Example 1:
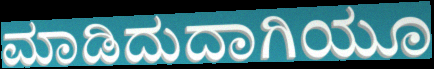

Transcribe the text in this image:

ಮಾಡಿದುದಾಗಿಯೂ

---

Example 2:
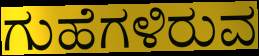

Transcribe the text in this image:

ಗುಹೆಗಳಿರುವ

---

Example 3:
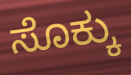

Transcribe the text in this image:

ಸೊಕ್ಕು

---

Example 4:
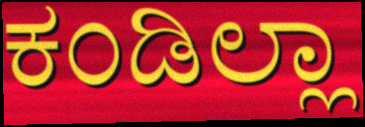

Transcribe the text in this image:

ಕಂಡಿಲ್ಲಾ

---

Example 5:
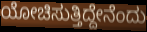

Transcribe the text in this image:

ಯೋಚಿಸುತ್ತಿದ್ದೇನೆಂದು